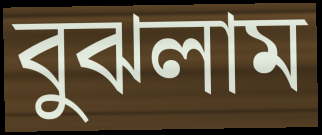
বুঝলাম